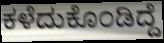
ಕಳೆದುಕೊಂಡಿದ್ದೆ